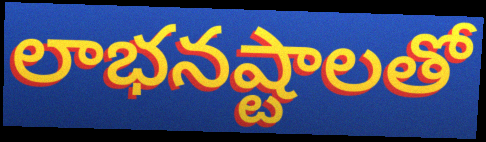
లాభనష్టాలతో